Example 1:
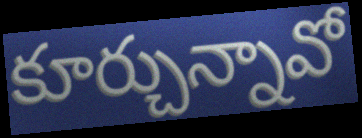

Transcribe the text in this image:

కూర్చున్నావో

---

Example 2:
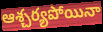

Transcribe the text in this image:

ఆశ్చర్యపోయినా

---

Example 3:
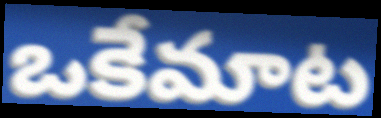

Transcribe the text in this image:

ఒకేమాట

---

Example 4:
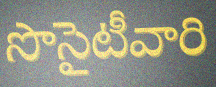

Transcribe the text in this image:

సొసైటీవారి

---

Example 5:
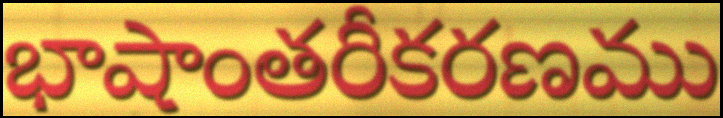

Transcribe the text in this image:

భాషాంతరీకరణము